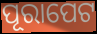
ପୂରାପେଟ